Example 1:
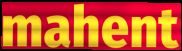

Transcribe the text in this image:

mahent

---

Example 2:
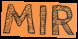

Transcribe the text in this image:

MIR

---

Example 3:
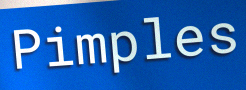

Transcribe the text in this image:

Pimples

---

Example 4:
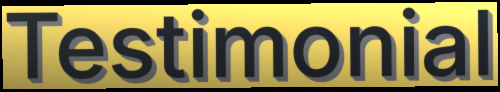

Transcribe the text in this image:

Testimonial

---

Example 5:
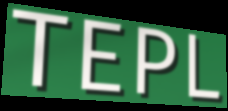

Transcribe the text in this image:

TEPL